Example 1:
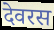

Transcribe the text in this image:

देवरस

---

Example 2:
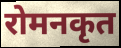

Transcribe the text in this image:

रोमनकृत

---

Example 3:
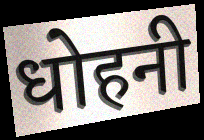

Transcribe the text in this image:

धोहनी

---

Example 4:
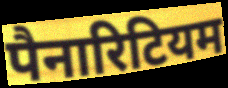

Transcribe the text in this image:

पैनारिटियम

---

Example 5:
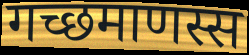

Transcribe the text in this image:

गच्छमाणस्स